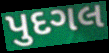
પુદગલ